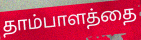
தாம்பாளத்தை